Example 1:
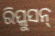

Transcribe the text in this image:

ରିପ୍ଲୁସନ୍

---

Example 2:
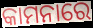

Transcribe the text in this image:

କାମନାରେ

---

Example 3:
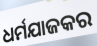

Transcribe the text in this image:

ଧର୍ମଯାଜକର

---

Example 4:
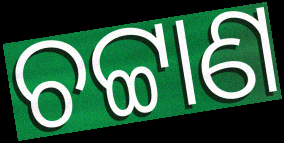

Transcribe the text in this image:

ଚଟ୍ଟାଣ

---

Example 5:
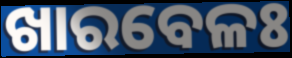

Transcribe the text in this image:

ଖାରବେଳଃ